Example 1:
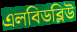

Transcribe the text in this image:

এলবিডব্লিউ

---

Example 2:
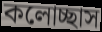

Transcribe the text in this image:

কলোচ্ছাস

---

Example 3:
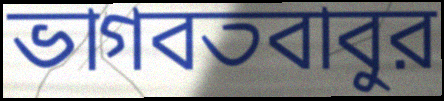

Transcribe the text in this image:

ভাগবতবাবুর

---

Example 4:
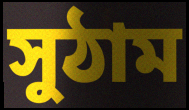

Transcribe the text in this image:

সুঠাম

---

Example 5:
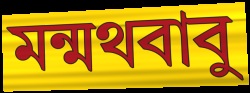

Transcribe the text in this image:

মন্মথবাবু